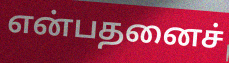
என்பதனைச்